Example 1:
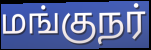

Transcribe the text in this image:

மங்குநர்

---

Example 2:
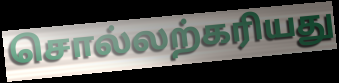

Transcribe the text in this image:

சொல்லற்கரியது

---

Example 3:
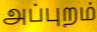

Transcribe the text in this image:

அப்புறம்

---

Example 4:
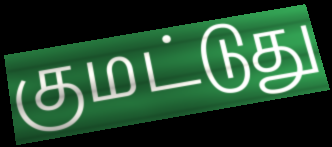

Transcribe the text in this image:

குமட்டுது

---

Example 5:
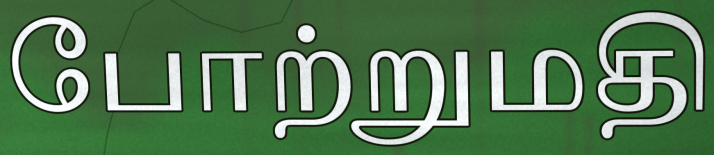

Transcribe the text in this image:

போற்றுமதி